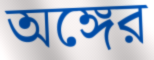
অঙ্গের